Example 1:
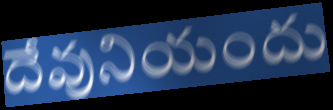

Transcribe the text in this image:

దేవునియందు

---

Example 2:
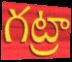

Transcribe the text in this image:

గట్రా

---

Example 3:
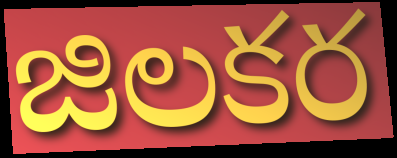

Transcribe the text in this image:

జిలకర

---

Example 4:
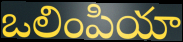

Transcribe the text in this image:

ఒలింపియా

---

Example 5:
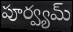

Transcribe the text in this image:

పూర్వ్యమ్